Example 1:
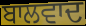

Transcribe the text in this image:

ਬਾਲਵਾਦ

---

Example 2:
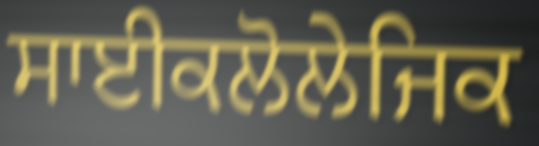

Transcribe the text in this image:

ਸਾਈਕਲੋਲੇਜਿਕ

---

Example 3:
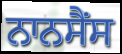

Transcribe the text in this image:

ਨਾਨਸੈਂਸ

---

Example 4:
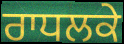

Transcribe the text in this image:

ਰਾਧਲਕੇ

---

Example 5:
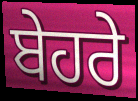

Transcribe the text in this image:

ਬੇਹਰੇ